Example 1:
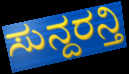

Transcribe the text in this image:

ಸುನ್ದರನ್ತಿ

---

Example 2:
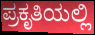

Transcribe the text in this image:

ಪ್ರಕೃತಿಯಲ್ಲಿ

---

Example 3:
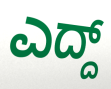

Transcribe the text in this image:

ಎದ್ದ್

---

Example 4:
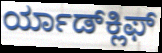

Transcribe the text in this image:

ರ್ಯಾಡ್‍ಕ್ಲಿಫ್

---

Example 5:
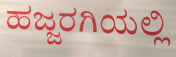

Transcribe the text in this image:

ಹಜ್ಜರಗಿಯಲ್ಲಿ